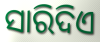
ସାରିଦିଏ